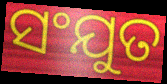
ସଂଯୁତ